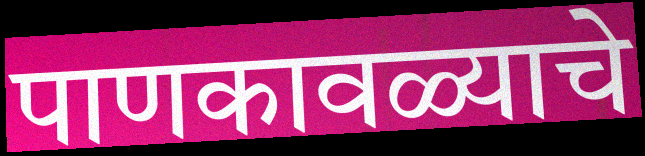
पाणकावळ्याचे